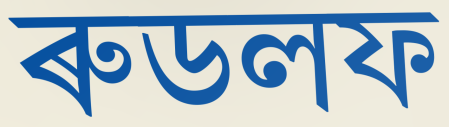
ৰুডলফ